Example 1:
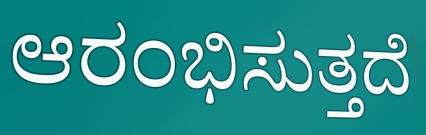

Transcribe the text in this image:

ಆರಂಭಿಸುತ್ತದೆ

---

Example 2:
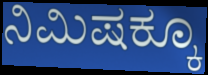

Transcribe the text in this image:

ನಿಮಿಷಕ್ಕೂ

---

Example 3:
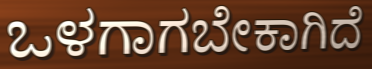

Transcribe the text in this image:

ಒಳಗಾಗಬೇಕಾಗಿದೆ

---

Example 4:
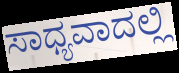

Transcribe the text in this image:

ಸಾಧ್ಯವಾದಲ್ಲಿ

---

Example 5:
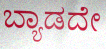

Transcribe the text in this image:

ಬ್ಯಾಡದೇ